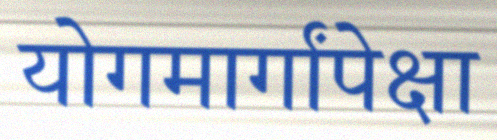
योगमार्गांपेक्षा